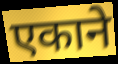
एकाने